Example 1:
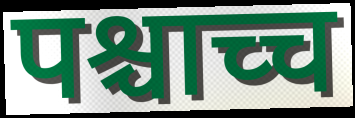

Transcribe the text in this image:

पश्चाच्च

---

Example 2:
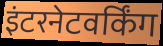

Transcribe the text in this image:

इंटरनेटवर्किंग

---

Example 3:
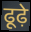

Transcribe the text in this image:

ढूढ़े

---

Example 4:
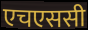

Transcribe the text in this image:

एचएससी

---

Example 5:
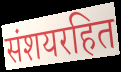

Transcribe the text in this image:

संशयरहित